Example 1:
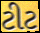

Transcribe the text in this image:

ટીટ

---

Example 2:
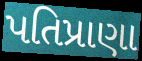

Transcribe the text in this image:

પતિપ્રાણા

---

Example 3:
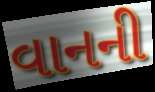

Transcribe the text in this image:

વાનની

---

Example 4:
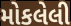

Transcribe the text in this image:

મોકલેલી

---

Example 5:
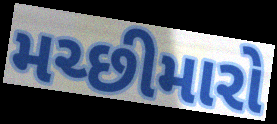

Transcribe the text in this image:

મચ્છીમારો